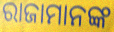
ରାଜାମାନଙ୍କ